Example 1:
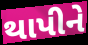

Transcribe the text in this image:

થાપીને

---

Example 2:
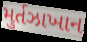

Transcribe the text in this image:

મુર્તઝાખાન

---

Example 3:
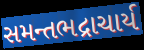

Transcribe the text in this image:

સમન્તભદ્રાચાર્ય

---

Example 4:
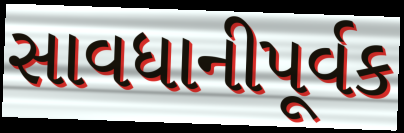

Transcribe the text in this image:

સાવધાનીપૂર્વક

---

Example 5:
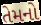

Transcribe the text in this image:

તેમનો